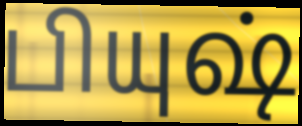
பியுஷ்